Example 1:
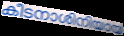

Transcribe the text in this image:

കീടനാശിനിയായ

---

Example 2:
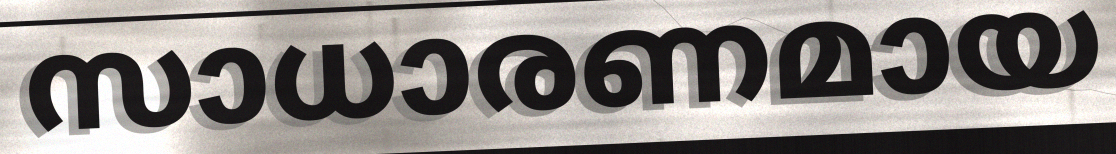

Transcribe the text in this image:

സാധാരണമായ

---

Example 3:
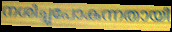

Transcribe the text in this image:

നശിച്ചുപോകുന്നതായി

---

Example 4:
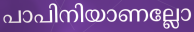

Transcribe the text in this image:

പാപിനിയാണല്ലോ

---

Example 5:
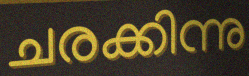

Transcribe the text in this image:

ചരക്കിന്നു